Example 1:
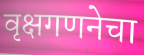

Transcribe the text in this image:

वृक्षगणनेचा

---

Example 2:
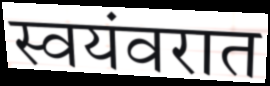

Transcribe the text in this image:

स्वयंवरात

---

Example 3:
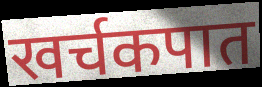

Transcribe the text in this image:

खर्चकपात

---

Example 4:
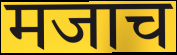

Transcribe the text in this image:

मजाच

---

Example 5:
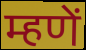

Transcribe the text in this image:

म्हणें